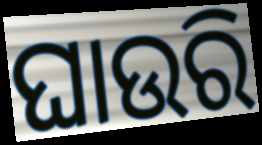
ଘାଉରି